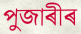
পুজাৰীৰ